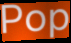
Pop